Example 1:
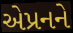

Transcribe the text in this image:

એપ્રનને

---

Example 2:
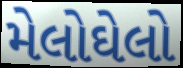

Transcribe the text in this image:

મેલોઘેલો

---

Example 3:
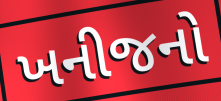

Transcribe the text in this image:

ખનીજનો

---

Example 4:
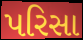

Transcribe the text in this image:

પરિસા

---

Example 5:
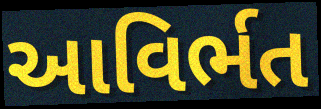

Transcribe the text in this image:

આવિર્ભત